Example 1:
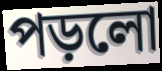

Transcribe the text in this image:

পড়লো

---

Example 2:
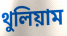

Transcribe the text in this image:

থুলিয়াম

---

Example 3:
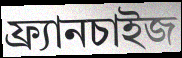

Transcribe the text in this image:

ফ্র্যানচাইজ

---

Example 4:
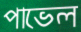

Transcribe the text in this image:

পাভেল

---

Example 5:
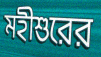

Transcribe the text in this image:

মহীশুরের